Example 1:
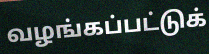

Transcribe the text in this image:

வழங்கப்பட்டுக்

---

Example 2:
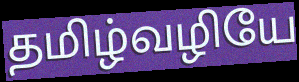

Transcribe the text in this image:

தமிழ்வழியே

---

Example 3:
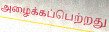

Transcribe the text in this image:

அழைக்கப்பெற்றது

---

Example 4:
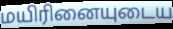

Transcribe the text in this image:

மயிரினையுடைய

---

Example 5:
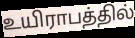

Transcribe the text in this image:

உயிராபத்தில்